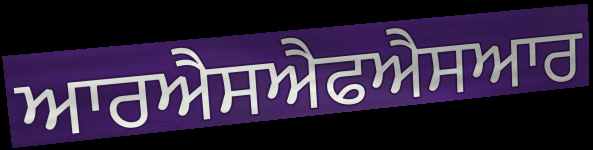
ਆਰਐਸਐਫਐਸਆਰ